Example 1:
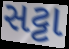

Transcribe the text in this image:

સટ્ટા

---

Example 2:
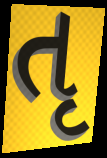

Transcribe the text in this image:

તૃ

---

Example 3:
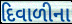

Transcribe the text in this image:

દિવાળીના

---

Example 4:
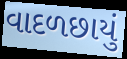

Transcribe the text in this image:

વાદળછાયું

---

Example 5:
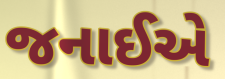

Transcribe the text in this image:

જનાઈએ